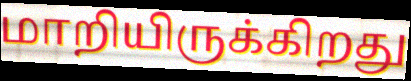
மாறியிருக்கிறது